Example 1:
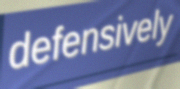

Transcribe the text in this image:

defensively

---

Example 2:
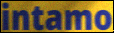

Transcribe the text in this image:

intamo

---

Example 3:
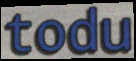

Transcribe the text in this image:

todu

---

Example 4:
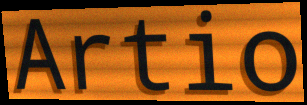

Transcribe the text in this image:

Artio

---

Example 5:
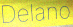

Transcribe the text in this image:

Delano